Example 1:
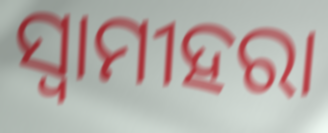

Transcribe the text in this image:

ସ୍ଵାମୀହରା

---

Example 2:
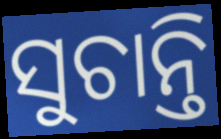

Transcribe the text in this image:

ସୁଚାନ୍ତି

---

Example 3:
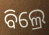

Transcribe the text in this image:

ବିଲ୍ରେ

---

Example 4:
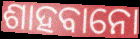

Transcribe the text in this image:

ଶାହବାନୋ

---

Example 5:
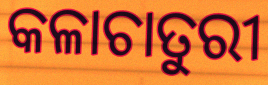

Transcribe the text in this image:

କଳାଚାତୁରୀ